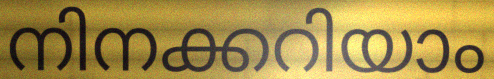
നിനക്കറിയാം